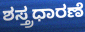
ಶಸ್ತ್ರಧಾರಣೆ